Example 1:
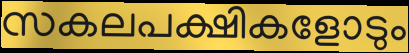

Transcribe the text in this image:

സകലപക്ഷികളോടും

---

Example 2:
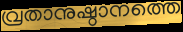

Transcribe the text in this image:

വ്രതാനുഷ്ഠാനത്തെ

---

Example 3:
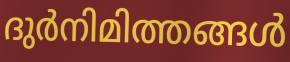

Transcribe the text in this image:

ദുർനിമിത്തങ്ങൾ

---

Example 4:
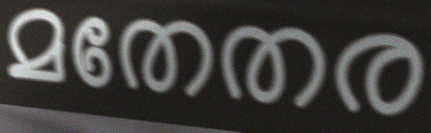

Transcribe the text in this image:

മതേതര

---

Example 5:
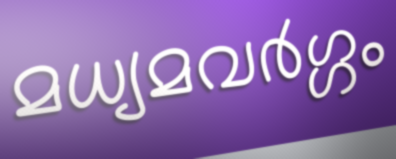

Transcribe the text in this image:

മധ്യമവർഗ്ഗം